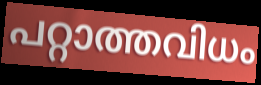
പറ്റാത്തവിധം